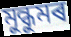
মুন্ধুমৰ